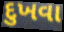
દુખવા